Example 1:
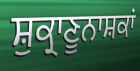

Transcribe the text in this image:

ਸ਼ੁਕ੍ਰਾਣੂਨਾਸ਼ਕਾਂ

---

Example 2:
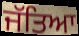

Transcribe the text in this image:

ਜੱਤਿਆ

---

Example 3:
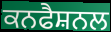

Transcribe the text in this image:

ਕਨਫੈਸ਼ਨਲ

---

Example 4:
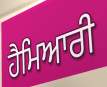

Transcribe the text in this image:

ਹੈਮਿਆਰੀ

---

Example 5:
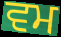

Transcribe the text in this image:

ਵਮ